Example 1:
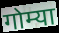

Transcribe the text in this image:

गोम्या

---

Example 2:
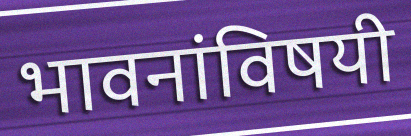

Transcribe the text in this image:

भावनांविषयी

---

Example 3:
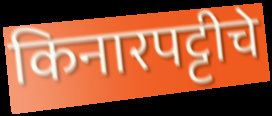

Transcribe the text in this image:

किनारपट्टीचे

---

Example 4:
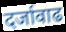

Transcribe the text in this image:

दर्जावाढ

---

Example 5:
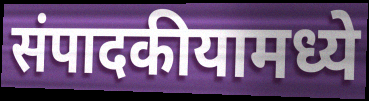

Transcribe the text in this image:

संपादकीयामध्ये